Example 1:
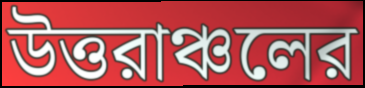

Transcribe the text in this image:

উত্তরাঞ্চলের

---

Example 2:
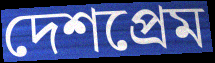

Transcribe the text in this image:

দেশপ্রেম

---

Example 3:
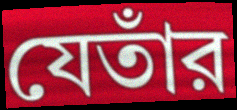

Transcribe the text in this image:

যেতাঁর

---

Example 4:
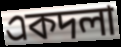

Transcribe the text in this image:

একদলা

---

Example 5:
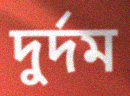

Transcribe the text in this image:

দুর্দম